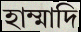
হাম্মাদি